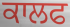
ਕਾਲਫ